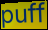
puff